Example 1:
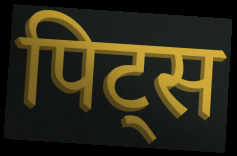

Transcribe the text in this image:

पिट्स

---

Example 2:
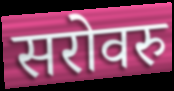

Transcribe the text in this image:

सरोवरु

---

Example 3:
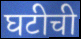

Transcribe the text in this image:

घटीची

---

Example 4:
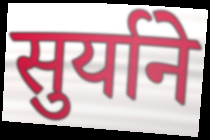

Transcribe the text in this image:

सुर्याने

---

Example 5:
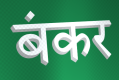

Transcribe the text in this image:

बंकर